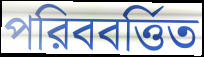
পরিববর্ত্তিত